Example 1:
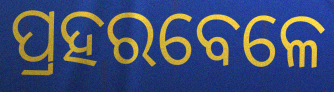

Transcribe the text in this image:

ପ୍ରହରବେଳେ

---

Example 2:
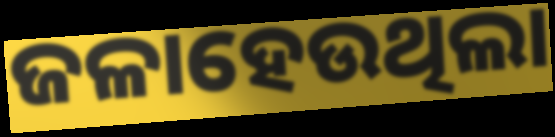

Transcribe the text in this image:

ଜଳାହେଉଥିଲା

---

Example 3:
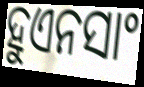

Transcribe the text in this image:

ହୁଏନସାଂ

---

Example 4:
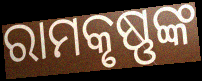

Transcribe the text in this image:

ରାମକୃଷ୍ଣଙ୍କ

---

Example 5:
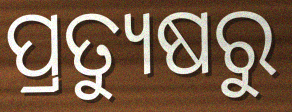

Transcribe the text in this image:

ପ୍ରତ୍ୟୁଷରୁ